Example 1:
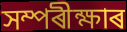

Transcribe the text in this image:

সম্পৰীক্ষাৰ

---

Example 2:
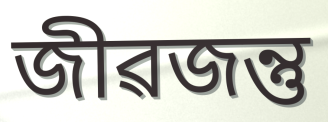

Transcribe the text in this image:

জীৱজন্তু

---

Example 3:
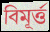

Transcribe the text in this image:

বিমূৰ্ত্ত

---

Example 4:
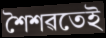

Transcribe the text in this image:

শৈশৱতেই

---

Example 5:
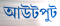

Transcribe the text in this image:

আউটপুট